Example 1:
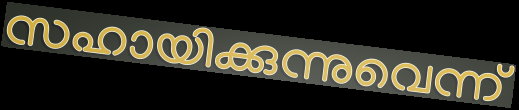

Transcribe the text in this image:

സഹായിക്കുന്നുവെന്ന്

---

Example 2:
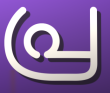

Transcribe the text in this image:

പ്ര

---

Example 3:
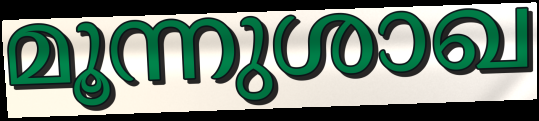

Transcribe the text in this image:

മൂന്നുശാഖ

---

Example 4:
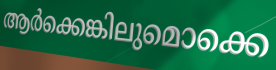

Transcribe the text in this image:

ആർക്കെങ്കിലുമൊക്കെ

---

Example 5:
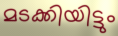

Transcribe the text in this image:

മടക്കിയിട്ടും